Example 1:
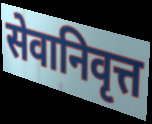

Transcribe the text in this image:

सेवानिवृत्त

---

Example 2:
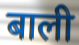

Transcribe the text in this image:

बाली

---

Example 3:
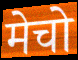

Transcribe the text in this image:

मेचो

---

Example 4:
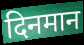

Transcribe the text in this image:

दिनमान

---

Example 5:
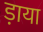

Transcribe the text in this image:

ड़ाया